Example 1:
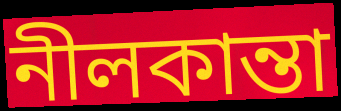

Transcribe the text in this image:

নীলকান্তা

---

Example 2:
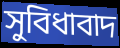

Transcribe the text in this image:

সুবিধাবাদ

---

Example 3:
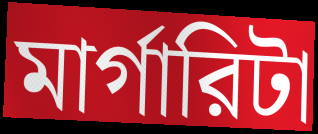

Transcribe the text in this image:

মার্গারিটা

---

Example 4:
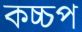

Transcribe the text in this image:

কচ্চপ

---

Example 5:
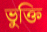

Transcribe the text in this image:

ভুক্তি